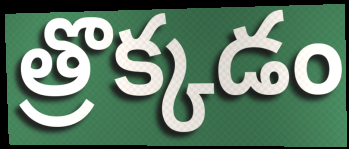
త్రొక్కడం